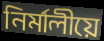
নিৰ্মালীয়ে